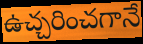
ఉచ్చరించగానే